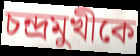
চন্দ্রমুখীকে